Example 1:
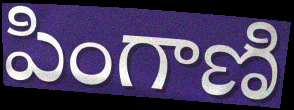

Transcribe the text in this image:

పింగాణి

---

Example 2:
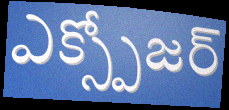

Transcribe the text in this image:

ఎక్స్పోజర్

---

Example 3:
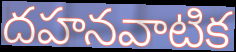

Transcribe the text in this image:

దహనవాటిక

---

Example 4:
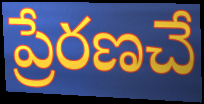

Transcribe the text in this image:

ప్రేరణచే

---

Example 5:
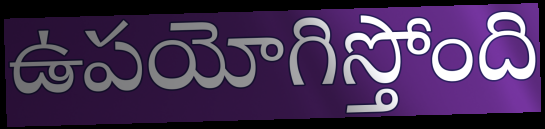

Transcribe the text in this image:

ఉపయోగిస్తోంది